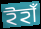
ইহাঁ